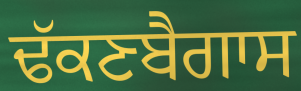
ਢੱਕਣਬੈਗਾਸ